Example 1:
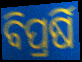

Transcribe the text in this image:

ବିପ୍ରର୍ଷି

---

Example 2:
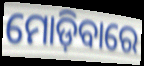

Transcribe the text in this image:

ମୋଡ଼ିବାରେ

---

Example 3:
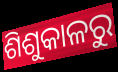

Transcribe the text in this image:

ଶିଶୁକାଳରୁ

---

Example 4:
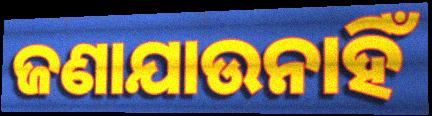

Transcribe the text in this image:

ଜଣାଯାଉନାହିଁ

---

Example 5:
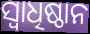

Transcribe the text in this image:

ସ୍ୱାଧିଷ୍ଠାନ